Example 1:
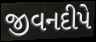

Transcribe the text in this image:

જીવનદીપે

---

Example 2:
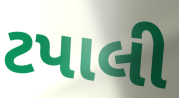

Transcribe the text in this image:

ટપાલી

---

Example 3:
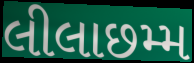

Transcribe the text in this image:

લીલાછમ્મ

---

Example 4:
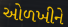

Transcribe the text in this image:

ઓળખીને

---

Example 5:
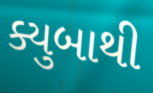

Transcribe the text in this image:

ક્યુબાથી